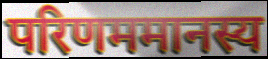
परिणममानस्य